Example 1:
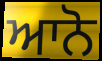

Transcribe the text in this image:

ਆਨੋ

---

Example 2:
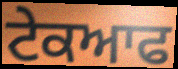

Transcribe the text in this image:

ਟੇਕਆਫ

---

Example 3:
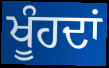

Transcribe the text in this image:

ਖੂੰਹਦਾਂ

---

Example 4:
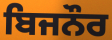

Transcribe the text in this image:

ਬਿਜਨੌਰ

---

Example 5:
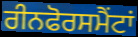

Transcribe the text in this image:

ਰੀਨਫੋਰਸਮੈਂਟਾਂ